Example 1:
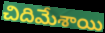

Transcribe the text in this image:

చిదిమేశాయి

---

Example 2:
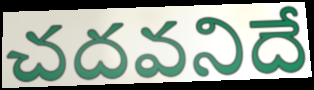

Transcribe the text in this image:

చదవనిదే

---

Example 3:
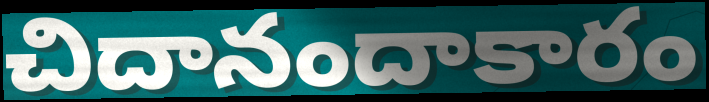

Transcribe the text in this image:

చిదానందాకారం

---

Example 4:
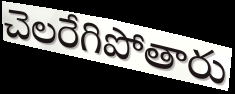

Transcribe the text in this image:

చెలరేగిపోతారు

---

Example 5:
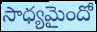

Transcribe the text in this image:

సాధ్యమైందో